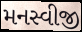
મનસ્વીજી